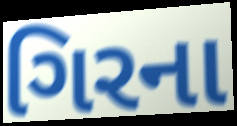
ગિરના